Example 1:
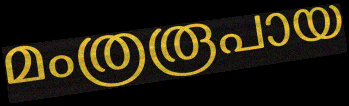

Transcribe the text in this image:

മംത്രരൂപായ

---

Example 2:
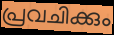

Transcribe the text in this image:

പ്രവചിക്കും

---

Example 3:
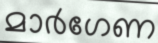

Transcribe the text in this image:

മാർഗേണ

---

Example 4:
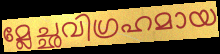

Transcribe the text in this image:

മ്ലേച്ഛവിഗ്രഹമായ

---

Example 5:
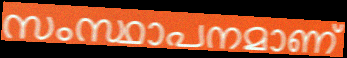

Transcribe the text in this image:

സംസ്ഥാപനമാണ്